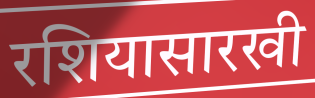
रशियासारखी